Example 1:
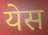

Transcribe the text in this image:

येस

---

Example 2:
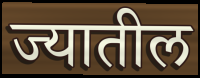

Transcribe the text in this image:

ज्यातील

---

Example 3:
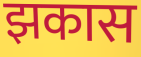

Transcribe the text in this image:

झकास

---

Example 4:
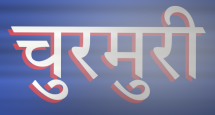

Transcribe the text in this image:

चुरमुरी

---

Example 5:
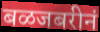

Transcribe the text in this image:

बळजबरीनं